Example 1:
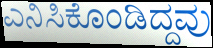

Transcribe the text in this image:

ಎನಿಸಿಕೊಂಡಿದ್ದವು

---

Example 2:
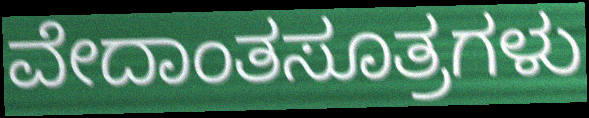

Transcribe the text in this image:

ವೇದಾಂತಸೂತ್ರಗಳು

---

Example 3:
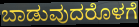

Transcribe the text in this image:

ಬಾಡುವುದರೊಳಗೆ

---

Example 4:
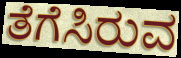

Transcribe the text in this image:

ತೆಗೆಸಿರುವ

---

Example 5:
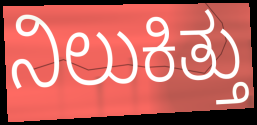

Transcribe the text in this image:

ನಿಲುಕಿತ್ತು